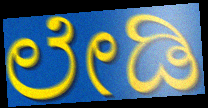
ಲೇಡಿ